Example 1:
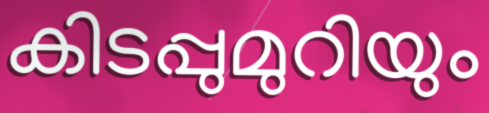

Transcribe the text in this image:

കിടപ്പുമുറിയും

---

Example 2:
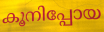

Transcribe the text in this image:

കൂനിപ്പോയ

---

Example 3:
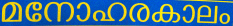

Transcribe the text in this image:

മനോഹരകാലം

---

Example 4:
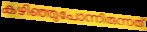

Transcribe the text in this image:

കഴിഞ്ഞുപോന്നിരുന്നത്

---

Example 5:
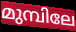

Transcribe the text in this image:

മുമ്പിലേ